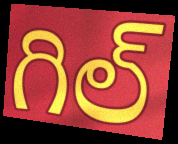
గిల్